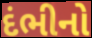
દંભીનો